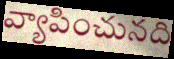
వ్యాపించునది